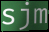
sjm